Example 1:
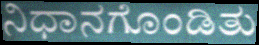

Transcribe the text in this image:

ನಿಧಾನಗೊಂಡಿತು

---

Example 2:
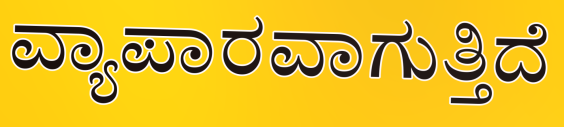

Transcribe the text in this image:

ವ್ಯಾಪಾರವಾಗುತ್ತಿದೆ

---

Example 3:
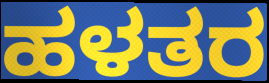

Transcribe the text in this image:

ಹಳತರ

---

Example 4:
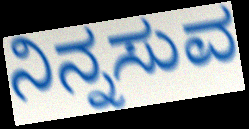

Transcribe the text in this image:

ನಿನ್ನಸುವ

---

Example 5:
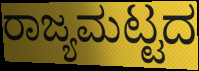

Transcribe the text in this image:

ರಾಜ್ಯಮಟ್ಟದ